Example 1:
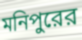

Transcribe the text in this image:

মনিপুরের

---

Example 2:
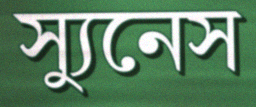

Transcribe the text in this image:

স্যুনেস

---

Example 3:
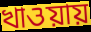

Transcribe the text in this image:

খাওয়ায়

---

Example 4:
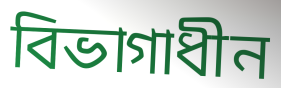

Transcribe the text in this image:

বিভাগাধীন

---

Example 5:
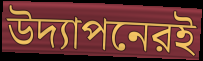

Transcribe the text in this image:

উদ্যাপনেরই